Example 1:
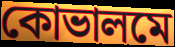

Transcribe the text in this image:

কোভালমে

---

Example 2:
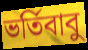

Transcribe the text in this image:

ভর্তিবাবু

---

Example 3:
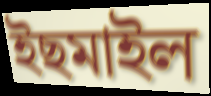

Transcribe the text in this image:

ইছমাইল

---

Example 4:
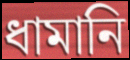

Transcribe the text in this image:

ধামানি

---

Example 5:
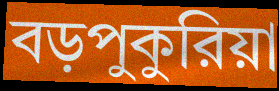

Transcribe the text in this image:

বড়পুকুরিয়া